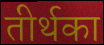
तीर्थका